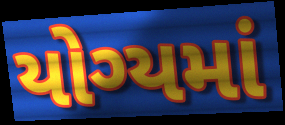
યોગ્યમાં